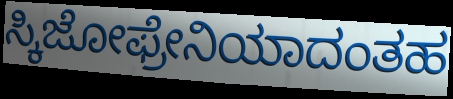
ಸ್ಕಿಜೋಫ್ರೇನಿಯಾದಂತಹ